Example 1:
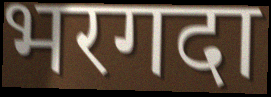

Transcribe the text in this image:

भरगदा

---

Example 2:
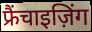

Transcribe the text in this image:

फ्रैंचाइज़िंग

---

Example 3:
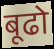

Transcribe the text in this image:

बूढो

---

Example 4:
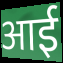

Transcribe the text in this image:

आई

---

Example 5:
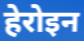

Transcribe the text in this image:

हेरोइन